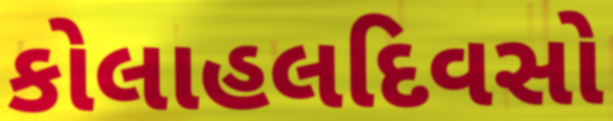
કોલાહલદિવસો